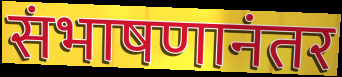
संभाषणानंतर